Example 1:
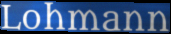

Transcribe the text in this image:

Lohmann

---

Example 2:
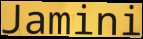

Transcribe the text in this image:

Jamini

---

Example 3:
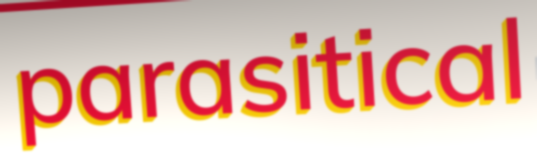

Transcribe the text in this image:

parasitical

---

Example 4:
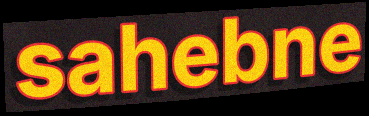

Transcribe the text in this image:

sahebne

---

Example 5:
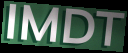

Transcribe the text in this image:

IMDT